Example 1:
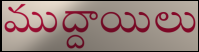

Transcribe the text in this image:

ముద్దాయిలు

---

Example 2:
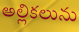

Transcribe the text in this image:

అల్లికలును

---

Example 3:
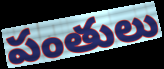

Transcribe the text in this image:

పంతులు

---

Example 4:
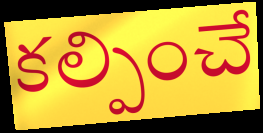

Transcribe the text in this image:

కల్పించే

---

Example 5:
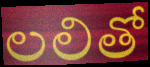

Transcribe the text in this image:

లలితో